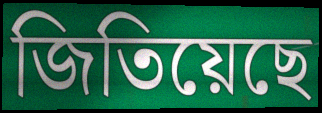
জিতিয়েছে